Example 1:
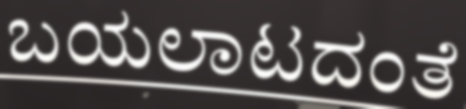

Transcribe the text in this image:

ಬಯಲಾಟದಂತೆ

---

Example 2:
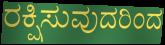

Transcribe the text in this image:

ರಕ್ಷಿಸುವುದರಿಂದ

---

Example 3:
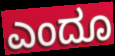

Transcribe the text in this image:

ಎಂದೂ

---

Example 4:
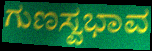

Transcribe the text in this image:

ಗುಣಸ್ವಭಾವ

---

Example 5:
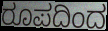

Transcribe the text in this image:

ರೂಪದಿಂದ